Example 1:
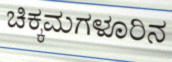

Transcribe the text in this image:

ಚಿಕ್ಕಮಗಳೂರಿನ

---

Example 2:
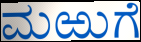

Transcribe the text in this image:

ಮಱುಗೆ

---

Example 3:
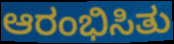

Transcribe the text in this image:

ಆರಂಭಿಸಿತು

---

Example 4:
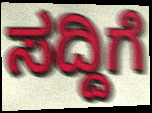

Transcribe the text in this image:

ಸದ್ದಿಗೆ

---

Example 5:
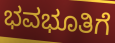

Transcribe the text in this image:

ಭವಭೂತಿಗೆ